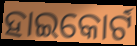
ହାଇକୋର୍ଟ